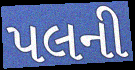
પલની